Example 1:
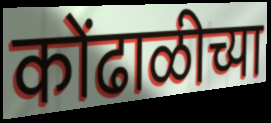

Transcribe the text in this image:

कोंढाळीच्या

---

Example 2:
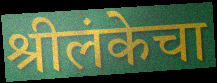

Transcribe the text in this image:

श्रीलंकेचा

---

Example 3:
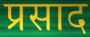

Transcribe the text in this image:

प्रसाद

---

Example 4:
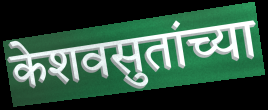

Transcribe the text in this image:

केशवसुतांच्या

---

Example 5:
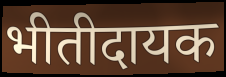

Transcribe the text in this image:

भीतीदायक